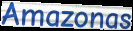
Amazonas